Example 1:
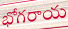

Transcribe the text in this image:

భోగరాయ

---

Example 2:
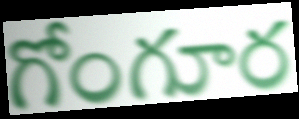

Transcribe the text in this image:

గోంగూర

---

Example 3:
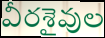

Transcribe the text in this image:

వీరశైవుల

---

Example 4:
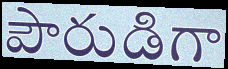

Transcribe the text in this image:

పౌరుడిగా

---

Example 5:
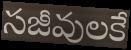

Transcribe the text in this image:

సజీవులకే